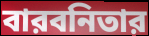
বারবনিতার